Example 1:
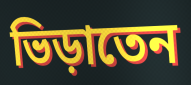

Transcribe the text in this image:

ভিড়াতেন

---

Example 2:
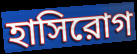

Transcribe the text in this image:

হাসিরোগ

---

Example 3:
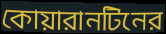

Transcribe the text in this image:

কোয়ারানটিনের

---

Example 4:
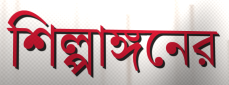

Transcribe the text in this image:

শিল্পাঙ্গনের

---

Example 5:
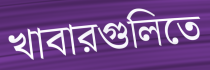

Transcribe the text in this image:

খাবারগুলিতে